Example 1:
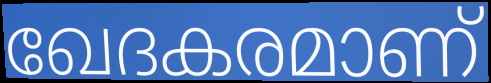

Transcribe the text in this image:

ഖേദകരമാണ്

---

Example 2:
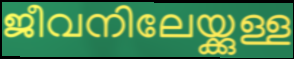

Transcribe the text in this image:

ജീവനിലേയ്ക്കുള്ള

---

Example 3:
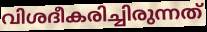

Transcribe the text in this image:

വിശദീകരിച്ചിരുന്നത്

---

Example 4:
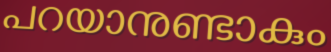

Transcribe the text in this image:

പറയാനുണ്ടാകും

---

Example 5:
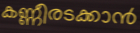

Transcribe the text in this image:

കണ്ണീരടക്കാൻ